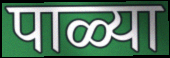
पाळ्या